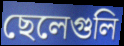
ছেলেগুলি